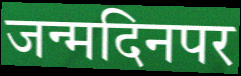
जन्मदिनपर